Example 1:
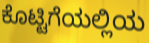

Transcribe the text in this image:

ಕೊಟ್ಟಿಗೆಯಲ್ಲಿಯ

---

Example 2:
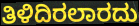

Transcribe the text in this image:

ತಿಳಿದಿರಲಾರದು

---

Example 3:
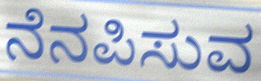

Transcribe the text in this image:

ನೆನಪಿಸುವ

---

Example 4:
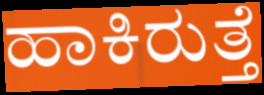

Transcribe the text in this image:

ಹಾಕಿರುತ್ತೆ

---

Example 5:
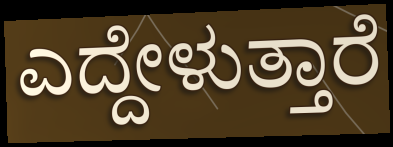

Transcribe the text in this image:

ಎದ್ದೇಳುತ್ತಾರೆ